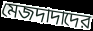
মেজদাদাদের